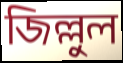
জিল্লুল